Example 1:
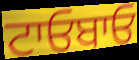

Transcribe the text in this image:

ਟਾਓਬਾਓ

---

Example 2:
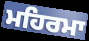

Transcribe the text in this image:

ਮਹਿਰਮਾ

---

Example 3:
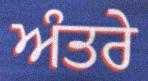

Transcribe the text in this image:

ਅੰਤਰੇ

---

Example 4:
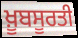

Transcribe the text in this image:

ਖ਼ੂਬਸੂਰਤੀ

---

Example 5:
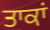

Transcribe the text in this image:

ਤਾਕਾਂ